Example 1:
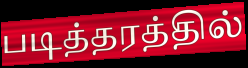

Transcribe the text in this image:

படித்தரத்தில்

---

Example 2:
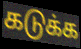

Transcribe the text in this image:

கடுக்க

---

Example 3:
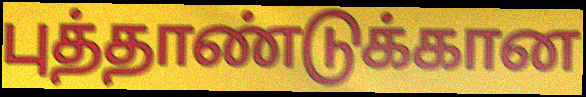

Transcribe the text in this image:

புத்தாண்டுக்கான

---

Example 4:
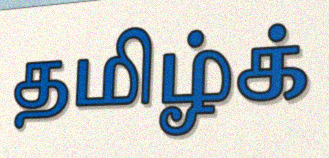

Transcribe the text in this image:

தமிழ்க்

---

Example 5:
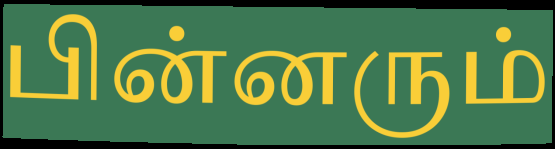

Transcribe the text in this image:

பின்னரும்